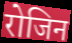
रोजिन